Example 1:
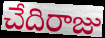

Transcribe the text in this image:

చేదిరాజు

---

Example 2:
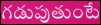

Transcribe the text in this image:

గడుపుతుంటే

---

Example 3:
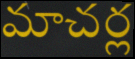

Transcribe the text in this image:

మాచర్ల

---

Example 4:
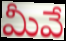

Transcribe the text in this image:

మీవే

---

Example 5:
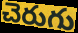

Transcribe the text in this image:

చెరుగు